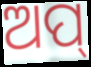
ଅପ୍